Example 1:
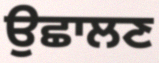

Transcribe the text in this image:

ਉਛਾਲਣ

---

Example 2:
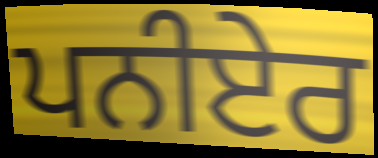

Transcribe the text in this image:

ਪਨੀਏਰ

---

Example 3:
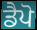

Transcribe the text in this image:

ਡੈਪੋ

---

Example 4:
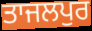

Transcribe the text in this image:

ਤਾਜਲਪੁਰ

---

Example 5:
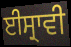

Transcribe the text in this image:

ਈਸ੍ਰਾਵੀ